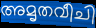
അമൃതവീചി